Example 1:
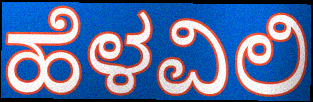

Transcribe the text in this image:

ಹೆಳವಿಲಿ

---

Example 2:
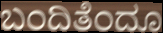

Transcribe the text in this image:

ಬಂದಿತೆಂದೂ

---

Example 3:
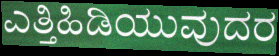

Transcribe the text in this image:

ಎತ್ತಿಹಿಡಿಯುವುದರ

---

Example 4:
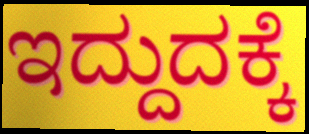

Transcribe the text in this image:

ಇದ್ದುದಕ್ಕೆ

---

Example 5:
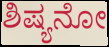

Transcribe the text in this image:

ಶಿಷ್ಯನೋ